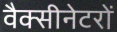
वैक्सीनेटरों